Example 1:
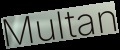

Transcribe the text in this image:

Multan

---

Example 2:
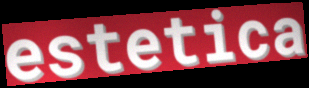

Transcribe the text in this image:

estetica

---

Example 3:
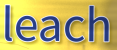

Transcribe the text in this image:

leach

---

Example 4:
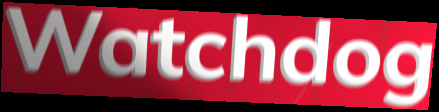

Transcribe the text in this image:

Watchdog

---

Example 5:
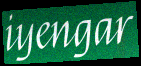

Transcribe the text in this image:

iyengar